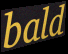
bald